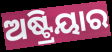
ଅଷ୍ଟ୍ରିୟାର